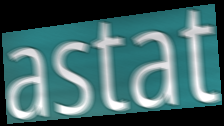
astat